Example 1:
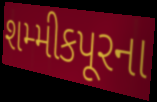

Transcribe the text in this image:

શમ્મીકપૂરના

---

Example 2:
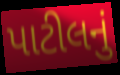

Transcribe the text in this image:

પાટીલનું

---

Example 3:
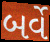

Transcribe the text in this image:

બર્વે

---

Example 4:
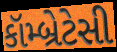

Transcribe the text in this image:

કૉમ્બ્રેટેસી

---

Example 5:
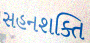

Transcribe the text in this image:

સહનશક્તિ